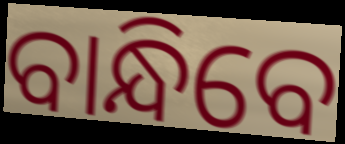
ବାନ୍ଧିବେ